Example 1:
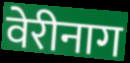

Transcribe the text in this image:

वेरीनाग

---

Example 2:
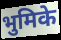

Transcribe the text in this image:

भुमिके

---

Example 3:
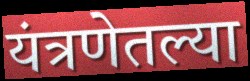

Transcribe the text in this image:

यंत्रणेतल्या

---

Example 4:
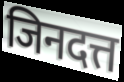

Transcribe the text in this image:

जिनदत्त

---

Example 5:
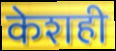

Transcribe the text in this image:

केशही